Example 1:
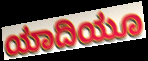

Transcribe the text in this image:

ಯಾದಿಯೂ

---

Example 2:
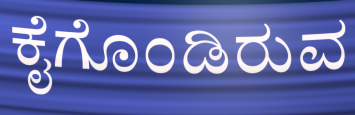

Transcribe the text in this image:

ಕೈಗೊಂಡಿರುವ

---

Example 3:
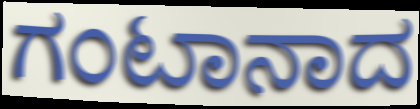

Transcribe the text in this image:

ಗಂಟಾನಾದ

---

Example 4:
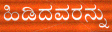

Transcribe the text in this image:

ಹಿಡಿದವರನ್ನು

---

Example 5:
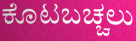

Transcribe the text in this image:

ಕೊಟಬಚ್ಚಲು